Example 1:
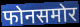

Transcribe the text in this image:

फोनसमोर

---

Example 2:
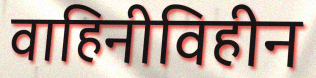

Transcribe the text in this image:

वाहिनीविहीन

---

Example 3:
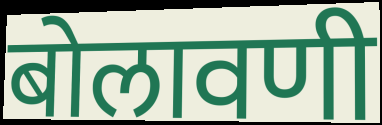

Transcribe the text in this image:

बोलावणी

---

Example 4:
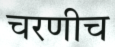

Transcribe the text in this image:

चरणीच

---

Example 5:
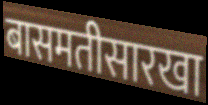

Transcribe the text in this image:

बासमतीसारखा